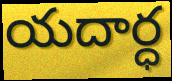
యదార్ధ